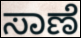
ಸಾಣೆ